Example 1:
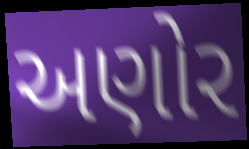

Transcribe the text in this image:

અણોર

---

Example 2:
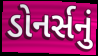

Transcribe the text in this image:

ડોનર્સનું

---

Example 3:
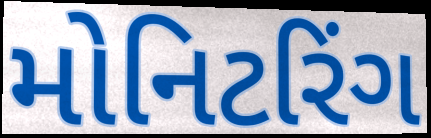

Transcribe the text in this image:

મોનિટરિંગ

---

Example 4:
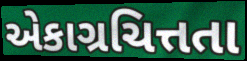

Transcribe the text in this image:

એકાગ્રચિત્તતા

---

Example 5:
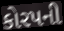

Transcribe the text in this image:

કોરપની